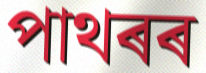
পাথৰৰ